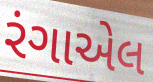
રંગાએલ